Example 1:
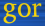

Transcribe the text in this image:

gor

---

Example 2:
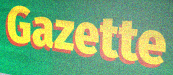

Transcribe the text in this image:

Gazette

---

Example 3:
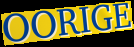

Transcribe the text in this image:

OORIGE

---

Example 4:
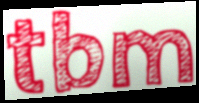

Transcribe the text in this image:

tbm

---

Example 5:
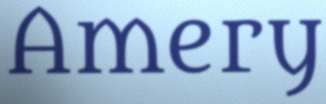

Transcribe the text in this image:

Amery